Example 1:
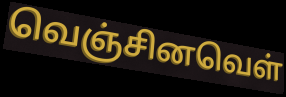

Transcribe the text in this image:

வெஞ்சினவெள்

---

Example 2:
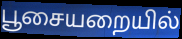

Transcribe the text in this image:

பூசையறையில்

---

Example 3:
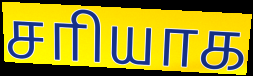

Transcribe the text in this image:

சரியாக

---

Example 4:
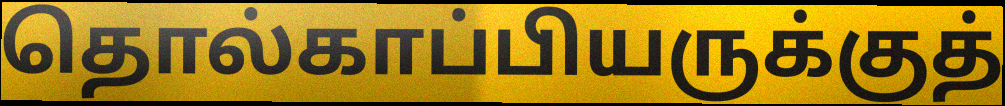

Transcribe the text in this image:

தொல்காப்பியருக்குத்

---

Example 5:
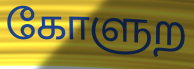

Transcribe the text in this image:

கோளுற